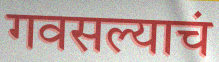
गवसल्याचं